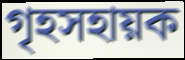
গৃহসহায়ক